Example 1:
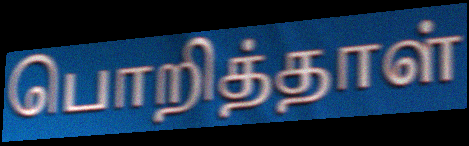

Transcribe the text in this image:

பொறித்தாள்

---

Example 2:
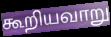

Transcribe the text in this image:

கூறியவாறு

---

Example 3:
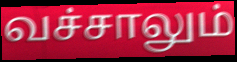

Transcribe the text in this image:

வச்சாலும்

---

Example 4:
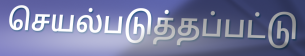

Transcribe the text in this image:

செயல்படுத்தப்பட்டு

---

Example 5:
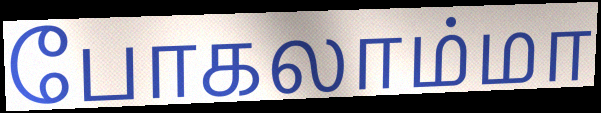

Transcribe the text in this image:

போகலாம்மா